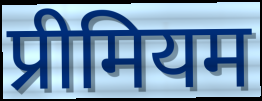
प्रीमियम